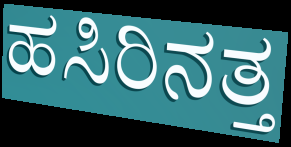
ಹಸಿರಿನತ್ತ